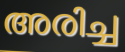
അരിച്ച